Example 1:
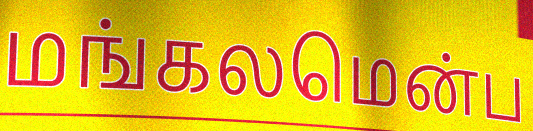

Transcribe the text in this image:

மங்கலமென்ப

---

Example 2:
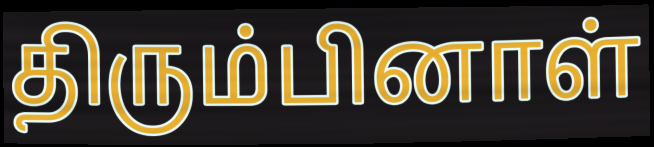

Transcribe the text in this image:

திரும்பினாள்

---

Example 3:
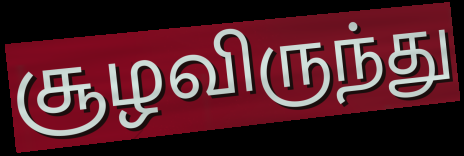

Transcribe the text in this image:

சூழவிருந்து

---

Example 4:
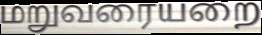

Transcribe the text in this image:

மறுவரையறை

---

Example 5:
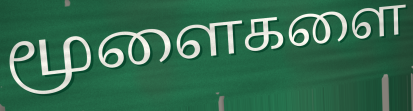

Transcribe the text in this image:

மூளைகளை